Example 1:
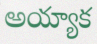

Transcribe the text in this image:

అయ్యాక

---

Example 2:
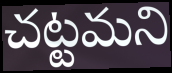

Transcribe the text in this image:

చట్టమని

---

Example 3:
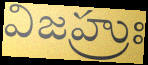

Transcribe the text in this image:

విజహ్రుః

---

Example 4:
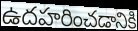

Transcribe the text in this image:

ఉదహరించడానికి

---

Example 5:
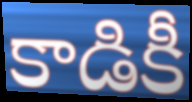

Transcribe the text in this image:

కాడికీ